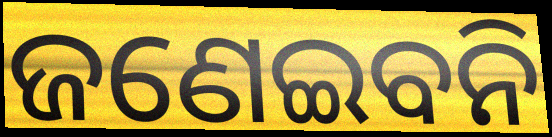
ଜଣେଇବନି